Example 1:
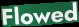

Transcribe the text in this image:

Flowed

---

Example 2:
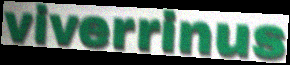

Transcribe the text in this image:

viverrinus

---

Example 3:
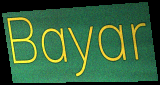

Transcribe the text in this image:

Bayar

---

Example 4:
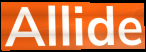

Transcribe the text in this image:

Allide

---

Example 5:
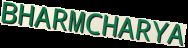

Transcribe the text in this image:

BHARMCHARYA